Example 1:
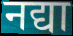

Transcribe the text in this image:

नद्या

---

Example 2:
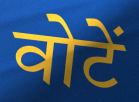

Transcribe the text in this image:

वोटें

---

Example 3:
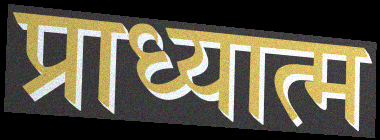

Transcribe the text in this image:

प्राध्यात्म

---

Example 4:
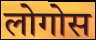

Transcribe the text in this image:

लोगोस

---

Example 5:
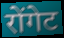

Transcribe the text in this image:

रोंगेट